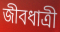
জীবধাত্রী